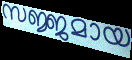
സജ്ജമായ